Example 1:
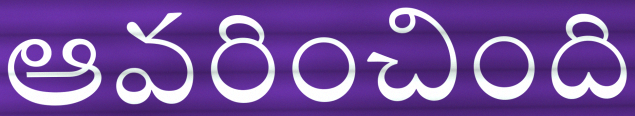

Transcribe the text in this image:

ఆవరించింది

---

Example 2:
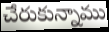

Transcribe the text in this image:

చేరుకున్నాము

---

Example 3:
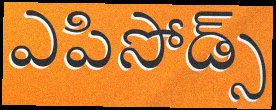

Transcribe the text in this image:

ఎపిసోడ్స్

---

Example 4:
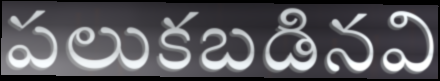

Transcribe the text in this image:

పలుకబడినవి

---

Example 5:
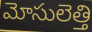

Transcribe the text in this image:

మోసులెత్తి